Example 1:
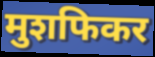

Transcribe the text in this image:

मुशफिकर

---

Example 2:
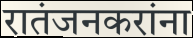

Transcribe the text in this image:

रातंजनकरांना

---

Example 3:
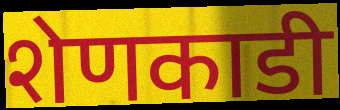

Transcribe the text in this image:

शेणकाडी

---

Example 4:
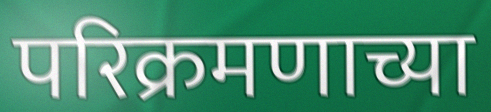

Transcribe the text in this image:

परिक्रमणाच्या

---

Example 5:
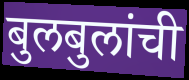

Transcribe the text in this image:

बुलबुलांची